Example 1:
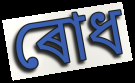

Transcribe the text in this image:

ৰোধ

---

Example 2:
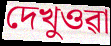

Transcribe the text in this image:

দেখুওৱা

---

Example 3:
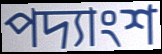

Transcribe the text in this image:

পদ্যাংশ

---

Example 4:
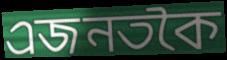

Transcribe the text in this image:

এজনতকৈ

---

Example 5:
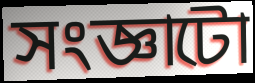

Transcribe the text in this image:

সংজ্ঞাটো